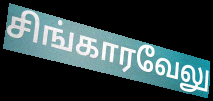
சிங்காரவேலு